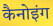
कैनोइंग